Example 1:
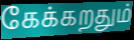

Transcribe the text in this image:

கேக்கறதும்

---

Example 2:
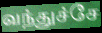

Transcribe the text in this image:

வந்துச்சே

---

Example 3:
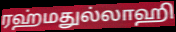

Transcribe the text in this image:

ரஹ்மதுல்லாஹி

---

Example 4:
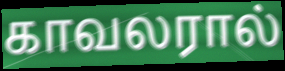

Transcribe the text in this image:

காவலரால்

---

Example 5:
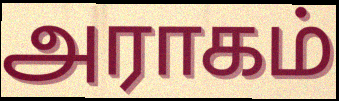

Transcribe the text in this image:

அராகம்